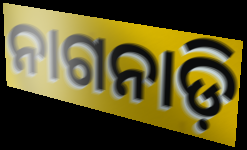
ନାଗନାଡ଼ି